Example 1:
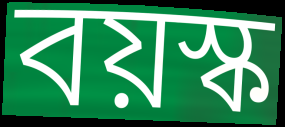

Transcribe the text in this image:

বয়স্ক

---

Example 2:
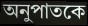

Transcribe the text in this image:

অনুপাতকে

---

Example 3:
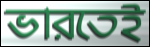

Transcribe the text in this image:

ভারতেই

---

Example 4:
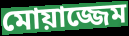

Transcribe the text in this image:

মোয়াজ্জেম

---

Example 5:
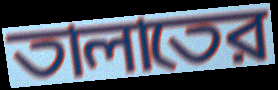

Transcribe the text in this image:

তালাতের